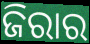
ଜିରାର